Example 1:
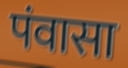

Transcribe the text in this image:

पंवासा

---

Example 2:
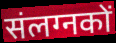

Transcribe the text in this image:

संलग्नकों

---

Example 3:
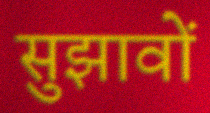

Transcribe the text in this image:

सुझावों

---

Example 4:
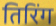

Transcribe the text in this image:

तिरिंग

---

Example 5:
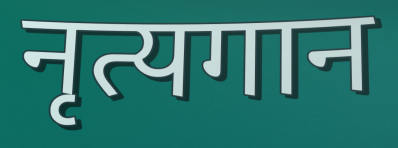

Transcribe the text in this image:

नृत्यगान